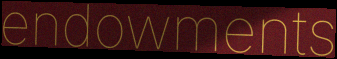
endowments